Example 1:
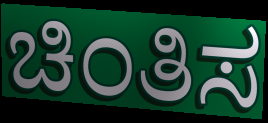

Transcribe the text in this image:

ಚಿಂತಿಸ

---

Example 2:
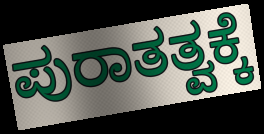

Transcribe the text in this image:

ಪುರಾತತ್ವಕ್ಕೆ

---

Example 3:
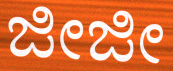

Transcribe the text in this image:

ಜೀಜೀ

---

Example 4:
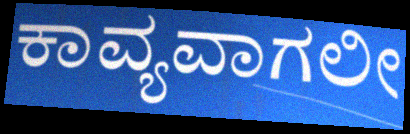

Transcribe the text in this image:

ಕಾವ್ಯವಾಗಲೀ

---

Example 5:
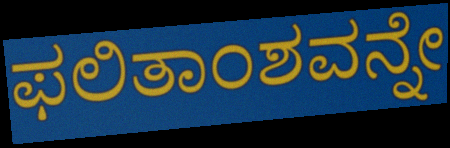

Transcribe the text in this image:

ಫಲಿತಾಂಶವನ್ನೇ